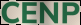
CENP